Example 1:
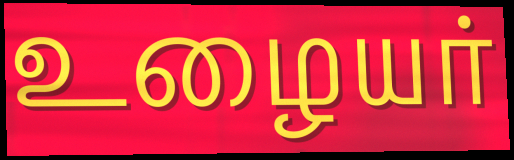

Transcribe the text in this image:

உழையர்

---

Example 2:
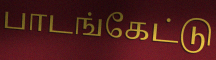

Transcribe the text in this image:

பாடங்கேட்டு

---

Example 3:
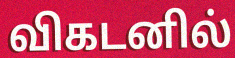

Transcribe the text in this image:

விகடனில்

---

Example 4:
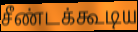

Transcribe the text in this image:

சீண்டக்கூடிய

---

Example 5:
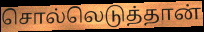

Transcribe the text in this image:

சொல்லெடுத்தான்